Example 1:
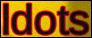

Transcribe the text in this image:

ldots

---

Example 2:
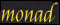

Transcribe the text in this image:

monad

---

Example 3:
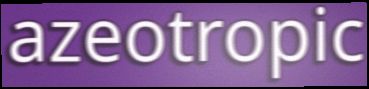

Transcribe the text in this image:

azeotropic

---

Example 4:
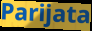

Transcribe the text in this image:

Parijata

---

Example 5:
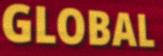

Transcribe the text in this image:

GLOBAL